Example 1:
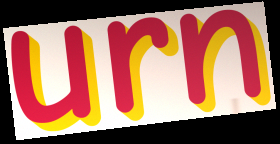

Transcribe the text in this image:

urn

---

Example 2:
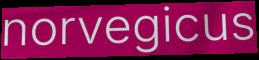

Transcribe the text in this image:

norvegicus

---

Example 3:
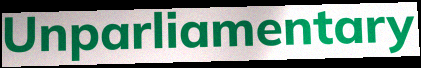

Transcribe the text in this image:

Unparliamentary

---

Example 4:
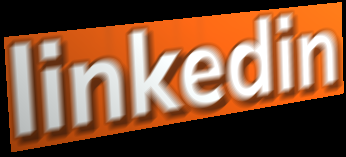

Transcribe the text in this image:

linkedin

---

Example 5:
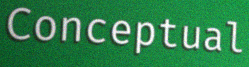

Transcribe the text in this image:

Conceptual